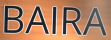
BAIRA